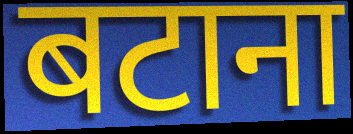
बटाना